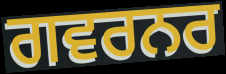
ਗਵਰਨਰ